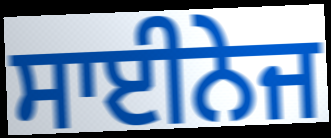
ਸਾਈਨੇਜ